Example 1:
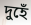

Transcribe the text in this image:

দুহেঁ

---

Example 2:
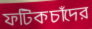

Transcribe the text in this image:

ফটিকচাঁদের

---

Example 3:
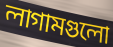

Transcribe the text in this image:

লাগামগুলো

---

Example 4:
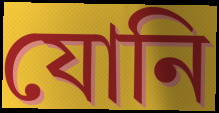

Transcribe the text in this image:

যোনি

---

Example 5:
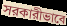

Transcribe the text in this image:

সরকারীভাবে